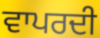
ਵਾਪਰਦੀ